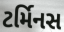
ટર્મિનસ